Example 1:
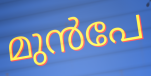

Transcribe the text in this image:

മുൻപേ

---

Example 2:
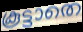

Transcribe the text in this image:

കൂട്ടാതെ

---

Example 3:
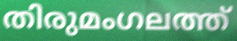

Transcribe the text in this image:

തിരുമംഗലത്ത്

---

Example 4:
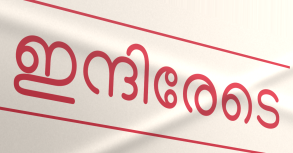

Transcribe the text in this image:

ഇന്ദിരേടെ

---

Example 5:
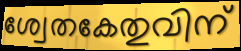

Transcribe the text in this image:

ശ്വേതകേതുവിന്